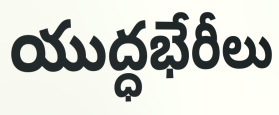
యుద్ధభేరీలు